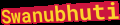
Swanubhuti